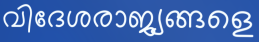
വിദേശരാജ്യങ്ങളെ